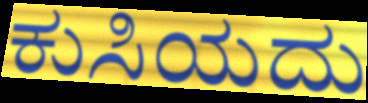
ಕುಸಿಯದು